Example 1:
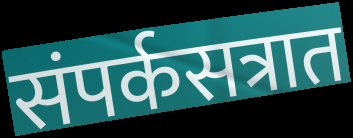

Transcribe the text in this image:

संपर्कसत्रात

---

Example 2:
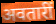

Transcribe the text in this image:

अवतारीं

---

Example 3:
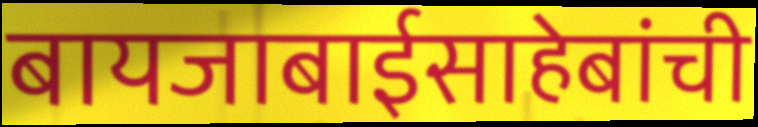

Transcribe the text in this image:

बायजाबाईसाहेबांची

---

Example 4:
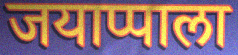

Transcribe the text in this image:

जयाप्पाला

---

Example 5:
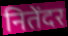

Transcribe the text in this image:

नितेंदर